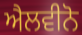
ਐਲਵੀਨੋ